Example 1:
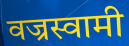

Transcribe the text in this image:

वज्रस्वामी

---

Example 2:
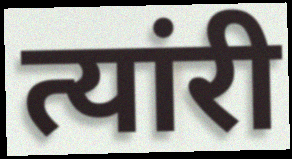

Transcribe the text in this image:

त्यांरी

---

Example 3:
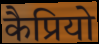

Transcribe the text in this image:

कैप्रियो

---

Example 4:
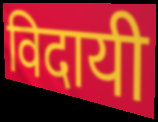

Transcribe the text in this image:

विदायी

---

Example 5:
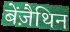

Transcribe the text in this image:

बेंज़ैथिन